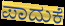
ಪಾದುಕೆ